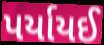
પર્યાયઈ